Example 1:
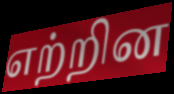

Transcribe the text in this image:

எற்றின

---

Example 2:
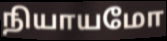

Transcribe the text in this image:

நியாயமோ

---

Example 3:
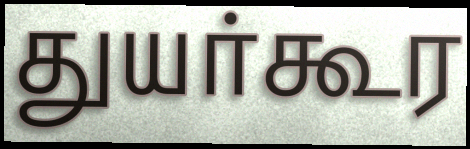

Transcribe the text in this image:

துயர்கூர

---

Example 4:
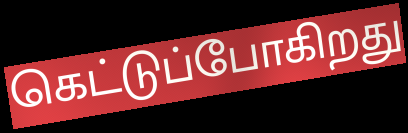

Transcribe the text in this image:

கெட்டுப்போகிறது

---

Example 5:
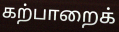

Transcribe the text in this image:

கற்பாறைக்